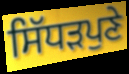
ਸਿੱਧੜਪੁਣੇ